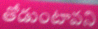
తోడుంటావని